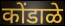
कोंडाळे